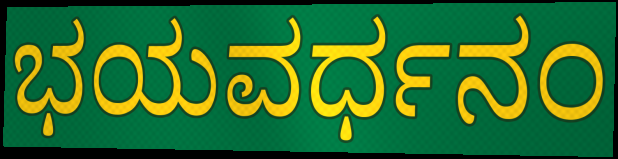
ಭಯವರ್ಧನಂ